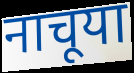
नाचूया